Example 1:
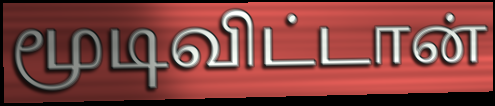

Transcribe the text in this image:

மூடிவிட்டான்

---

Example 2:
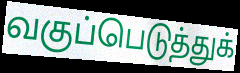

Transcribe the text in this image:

வகுப்பெடுத்துக்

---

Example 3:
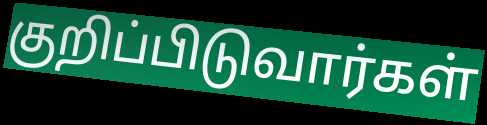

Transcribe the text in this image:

குறிப்பிடுவார்கள்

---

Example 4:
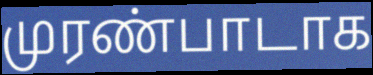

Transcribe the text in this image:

முரண்பாடாக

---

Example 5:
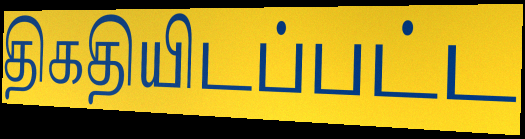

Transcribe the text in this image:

திகதியிடப்பட்ட